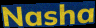
Nasha